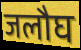
जलौघ